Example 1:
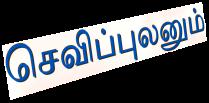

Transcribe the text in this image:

செவிப்புலனும்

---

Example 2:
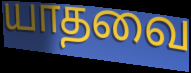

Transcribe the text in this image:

யாதவை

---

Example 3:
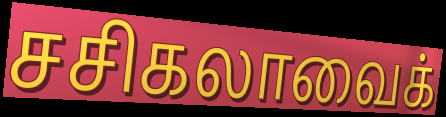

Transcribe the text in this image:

சசிகலாவைக்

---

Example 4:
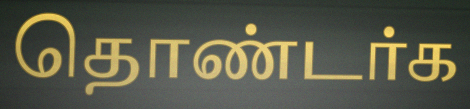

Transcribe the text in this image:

தொண்டர்க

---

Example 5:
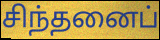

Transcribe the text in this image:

சிந்தனைப்